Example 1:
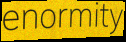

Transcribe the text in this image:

enormity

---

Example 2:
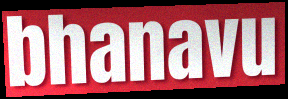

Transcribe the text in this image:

bhanavu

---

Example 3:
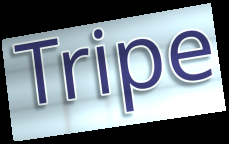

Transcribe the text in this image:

Tripe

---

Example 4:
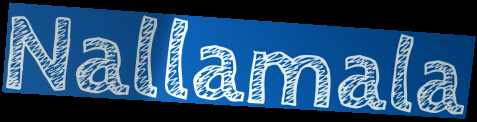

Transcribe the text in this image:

Nallamala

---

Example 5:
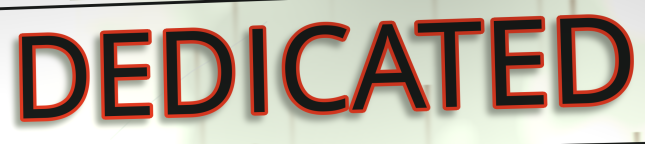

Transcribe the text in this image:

DEDICATED